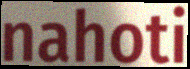
nahoti